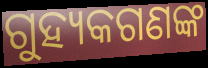
ଗୁହ୍ୟକଗଣଙ୍କ